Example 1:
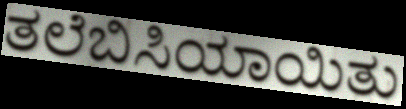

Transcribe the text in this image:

ತಲೆಬಿಸಿಯಾಯಿತು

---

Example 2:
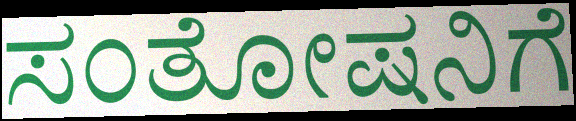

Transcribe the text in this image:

ಸಂತೋಷನಿಗೆ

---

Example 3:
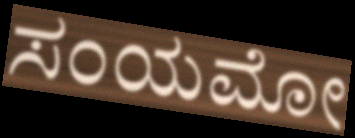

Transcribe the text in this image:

ಸಂಯಮೋ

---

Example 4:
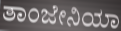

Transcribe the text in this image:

ತಾಂಜೇನಿಯಾ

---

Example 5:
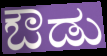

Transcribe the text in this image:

ಔಡು